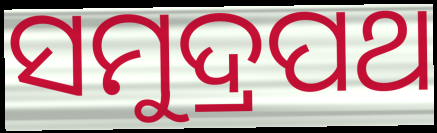
ସମୁଦ୍ରପଥ